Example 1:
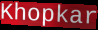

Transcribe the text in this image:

Khopkar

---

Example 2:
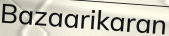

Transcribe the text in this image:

Bazaarikaran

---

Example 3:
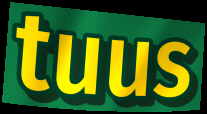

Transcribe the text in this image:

tuus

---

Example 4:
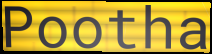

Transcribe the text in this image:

Pootha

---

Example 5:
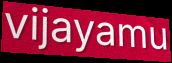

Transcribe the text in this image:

vijayamu